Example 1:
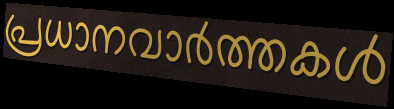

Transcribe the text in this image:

പ്രധാനവാർത്തകൾ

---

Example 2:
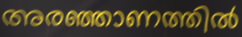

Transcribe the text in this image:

അരഞ്ഞാണത്തിൽ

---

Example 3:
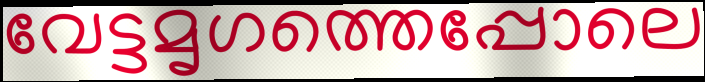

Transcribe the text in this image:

വേട്ടമൃഗത്തെപ്പോലെ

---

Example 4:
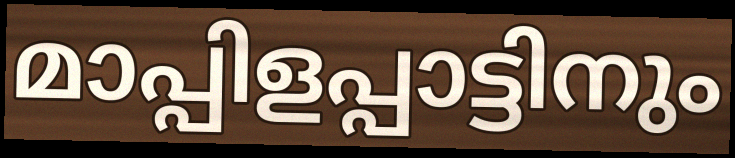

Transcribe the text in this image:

മാപ്പിളപ്പാട്ടിനും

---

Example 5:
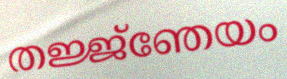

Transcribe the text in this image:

തജ്ജ്ഞേയം